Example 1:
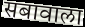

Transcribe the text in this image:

सबावाला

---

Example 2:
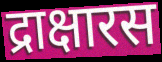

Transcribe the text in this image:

द्राक्षारस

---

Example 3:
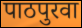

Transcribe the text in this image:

पाठपुरवा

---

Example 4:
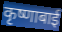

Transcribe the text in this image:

कृष्णाबाई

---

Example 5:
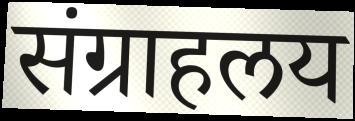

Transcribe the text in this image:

संग्राहलय